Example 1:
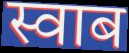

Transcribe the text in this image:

स्वाब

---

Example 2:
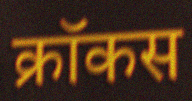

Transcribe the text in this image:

क्रॉकस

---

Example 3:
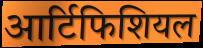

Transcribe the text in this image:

आर्टिफिशियल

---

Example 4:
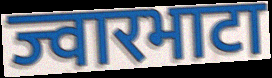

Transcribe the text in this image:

ज्वारभाटा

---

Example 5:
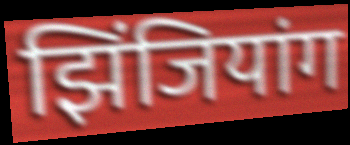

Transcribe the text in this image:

झिंजियांग